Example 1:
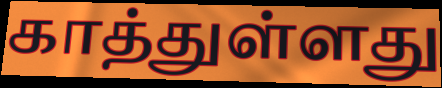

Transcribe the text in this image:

காத்துள்ளது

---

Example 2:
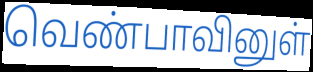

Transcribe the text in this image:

வெண்பாவினுள்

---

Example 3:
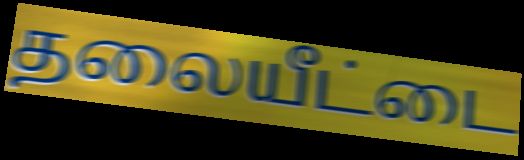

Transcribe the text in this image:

தலையீட்டை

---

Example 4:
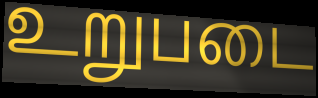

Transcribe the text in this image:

உறுபடை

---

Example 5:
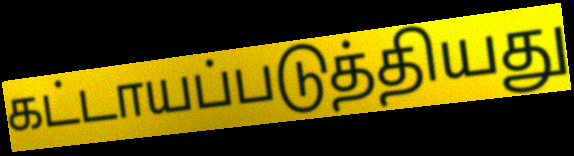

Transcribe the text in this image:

கட்டாயப்படுத்தியது